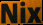
Nix